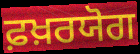
ਫ਼ਖ਼ਰਯੋਗ